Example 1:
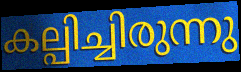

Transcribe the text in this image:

കല്പിച്ചിരുന്നു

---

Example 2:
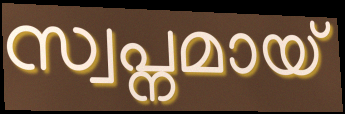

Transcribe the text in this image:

സ്വപ്നമായ്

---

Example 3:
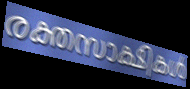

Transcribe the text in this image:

രക്തസാക്ഷികൾ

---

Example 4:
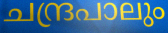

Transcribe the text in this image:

ചന്ദ്രപാലും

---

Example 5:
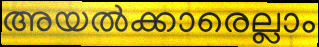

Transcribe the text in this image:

അയൽക്കാരെല്ലാം